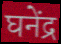
घनेंद्र